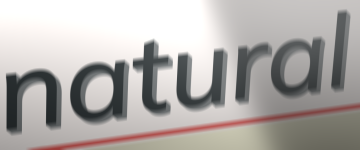
natural